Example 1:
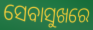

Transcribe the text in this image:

ସେବାସୁଖରେ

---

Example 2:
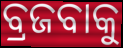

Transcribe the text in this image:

ବ୍ରଜବାକୁ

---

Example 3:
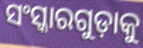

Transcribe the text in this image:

ସଂସ୍କାରଗୁଡ଼ାକୁ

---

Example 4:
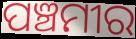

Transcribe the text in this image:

ପଞ୍ଚମୀର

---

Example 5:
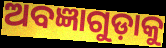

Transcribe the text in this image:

ଅବଜ୍ଞାଗୁଡ଼ାକୁ